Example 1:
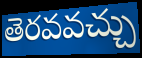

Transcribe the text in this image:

తెరవవచ్చు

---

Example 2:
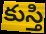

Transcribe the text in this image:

కుస్తి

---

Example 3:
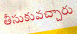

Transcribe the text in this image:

తీసుకువచ్చారు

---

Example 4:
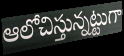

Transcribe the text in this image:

ఆలోచిస్తున్నట్టుగా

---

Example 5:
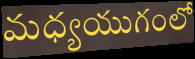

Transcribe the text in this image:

మధ్యయుగంలో